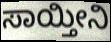
ಸಾಯ್ತೀನಿ